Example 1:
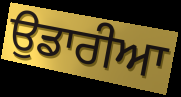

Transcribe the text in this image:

ਉਡਾਰੀਆ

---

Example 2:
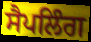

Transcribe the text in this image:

ਸੈਪਲਿੰਗ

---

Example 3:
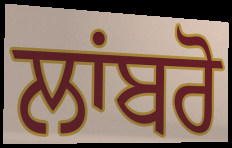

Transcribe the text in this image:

ਲਾਂਬਰੋ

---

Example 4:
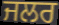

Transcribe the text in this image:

ਜਲਰ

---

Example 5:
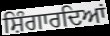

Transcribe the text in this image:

ਸ਼ਿੰਗਾਰਦਿਆਂ